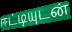
ஈட்டியுடன்